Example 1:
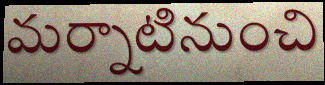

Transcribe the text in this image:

మర్నాటినుంచి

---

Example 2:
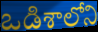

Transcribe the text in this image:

ఒడిశాలోని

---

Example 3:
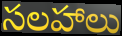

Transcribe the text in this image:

సలహాలు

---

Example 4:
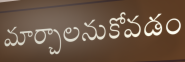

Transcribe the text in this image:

మార్చాలనుకోవడం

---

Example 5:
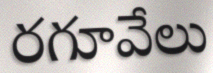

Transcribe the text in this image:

రగూవేలు